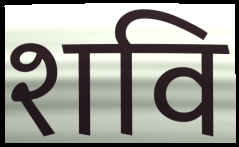
शवि